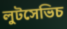
লুটসেভিচ